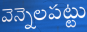
వెన్నెలపట్టు